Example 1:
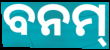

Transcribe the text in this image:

ବନମ୍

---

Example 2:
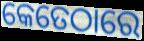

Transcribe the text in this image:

କେତେଠାରେ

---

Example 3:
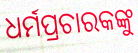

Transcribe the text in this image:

ଧର୍ମପ୍ରଚାରକଙ୍କୁ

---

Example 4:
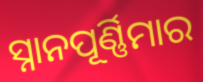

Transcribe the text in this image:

ସ୍ନାନପୂର୍ଣ୍ଣିମାର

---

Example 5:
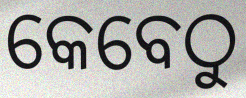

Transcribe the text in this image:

କେବେଠୁ